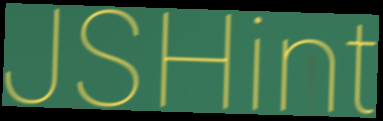
JSHint